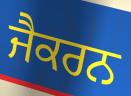
ਜੈਕਰਨ